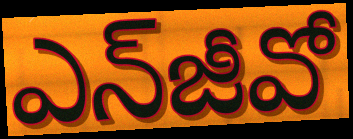
ఎన్‌జీవో